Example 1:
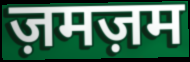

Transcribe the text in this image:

ज़मज़म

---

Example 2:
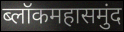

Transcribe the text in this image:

ब्लॉकमहासमुंद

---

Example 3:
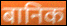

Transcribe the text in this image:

बानिक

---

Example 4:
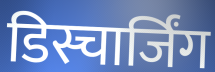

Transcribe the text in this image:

डिस्चार्जिंग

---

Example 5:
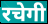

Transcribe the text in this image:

रचेगी